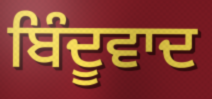
ਬਿੰਦੂਵਾਦ